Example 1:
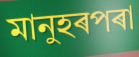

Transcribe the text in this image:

মানুহৰপৰা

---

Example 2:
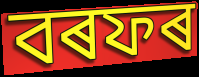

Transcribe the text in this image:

বৰফৰ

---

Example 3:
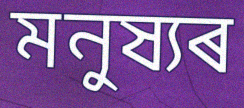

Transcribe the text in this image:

মনুষ্যৰ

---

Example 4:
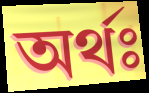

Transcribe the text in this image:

অৰ্থঃ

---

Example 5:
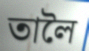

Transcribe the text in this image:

তালৈ